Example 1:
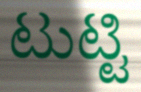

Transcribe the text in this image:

ಟುಟ್ಟಿ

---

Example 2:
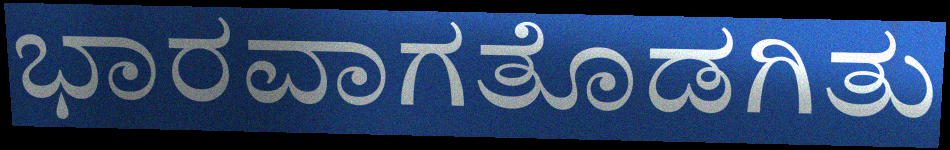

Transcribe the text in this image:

ಭಾರವಾಗತೊಡಗಿತು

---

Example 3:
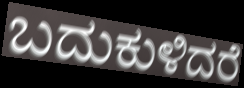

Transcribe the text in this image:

ಬದುಕುಳಿದರೆ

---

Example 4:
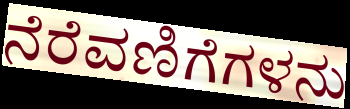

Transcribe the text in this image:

ನೆರೆವಣಿಗೆಗಳನು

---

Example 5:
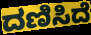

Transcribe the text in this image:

ದಣಿಸಿದೆ